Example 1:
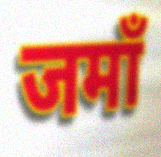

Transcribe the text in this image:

जमाँ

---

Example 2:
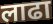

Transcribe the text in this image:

लाढा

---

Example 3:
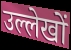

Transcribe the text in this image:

उल्लेखों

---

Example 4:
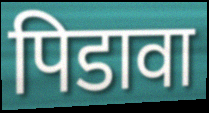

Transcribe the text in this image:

पिडावा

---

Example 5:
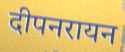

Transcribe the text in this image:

दीपनरायन